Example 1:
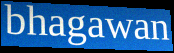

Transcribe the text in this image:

bhagawan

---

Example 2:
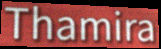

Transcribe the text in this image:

Thamira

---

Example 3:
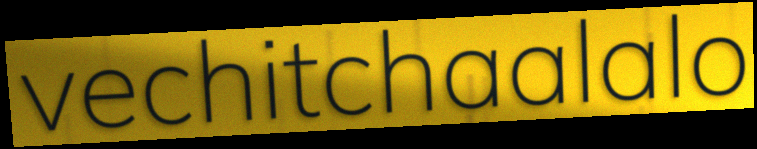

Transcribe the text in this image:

vechitchaalalo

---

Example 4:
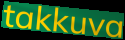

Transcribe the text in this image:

takkuva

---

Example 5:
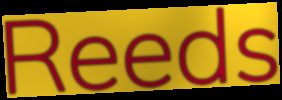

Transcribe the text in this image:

Reeds